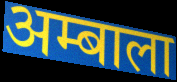
अम्‍बाला